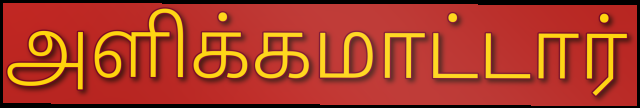
அளிக்கமாட்டார்